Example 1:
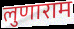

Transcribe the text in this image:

लुणाराम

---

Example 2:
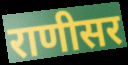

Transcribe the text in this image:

राणीसर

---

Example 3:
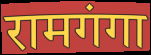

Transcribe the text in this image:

रामगंगा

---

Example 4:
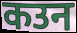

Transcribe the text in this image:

कउन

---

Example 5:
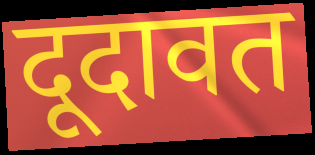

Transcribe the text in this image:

दूदावत